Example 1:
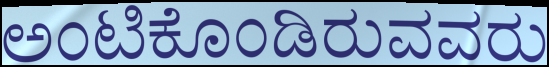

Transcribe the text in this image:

ಅಂಟಿಕೊಂಡಿರುವವರು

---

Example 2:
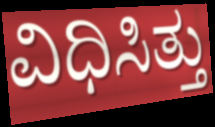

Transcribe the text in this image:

ವಿಧಿಸಿತ್ತು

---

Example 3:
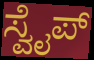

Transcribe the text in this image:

ಸ್ವೈಪ್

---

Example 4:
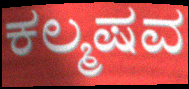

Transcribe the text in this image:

ಕಲ್ಮಷವ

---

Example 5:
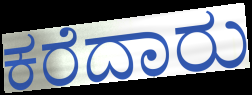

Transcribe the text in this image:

ಕರೆದಾರು